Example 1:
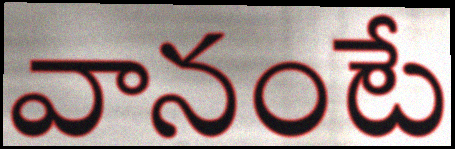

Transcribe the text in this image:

వానంటే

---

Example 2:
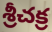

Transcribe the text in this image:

శ్రీచక్ర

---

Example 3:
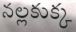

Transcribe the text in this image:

నల్లకుక్క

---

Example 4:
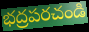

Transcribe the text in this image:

భద్రపరచండి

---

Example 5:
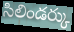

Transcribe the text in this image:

సిలిండర్కు